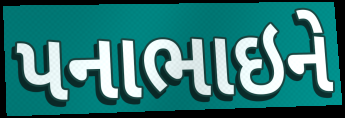
પનાભાઇને